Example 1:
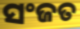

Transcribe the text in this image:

ସଂଜତ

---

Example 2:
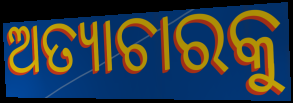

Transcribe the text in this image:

ଅତ୍ୟାଚାରକୁ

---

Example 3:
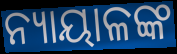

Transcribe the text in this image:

ନ୍ୟାୟାଳଙ୍କ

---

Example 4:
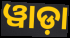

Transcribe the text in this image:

ୱାଡ଼ା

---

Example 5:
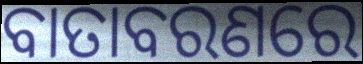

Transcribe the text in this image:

ବାତାବରଣରେ